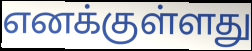
எனக்குள்ளது